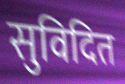
सुविदित